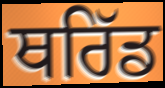
ਥਰਿੱਡ